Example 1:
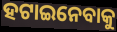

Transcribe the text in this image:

ହଟାଇନେବାକୁ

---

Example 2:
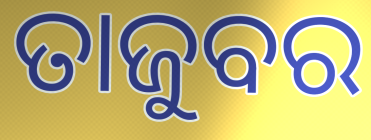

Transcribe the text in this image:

ତାଜୁବର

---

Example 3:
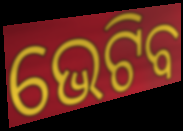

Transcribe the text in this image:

ଭେଟିବ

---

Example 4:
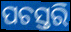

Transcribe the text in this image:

ପଚସ୍ତରି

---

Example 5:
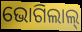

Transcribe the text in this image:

ଭୋଗିଲାଲ୍